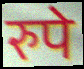
रुपे